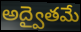
అద్వైతమే